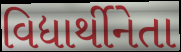
વિદ્યાર્થીનેતા